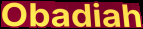
Obadiah